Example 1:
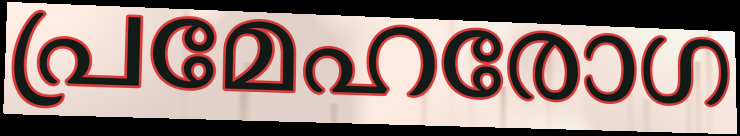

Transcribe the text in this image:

പ്രമേഹരോഗ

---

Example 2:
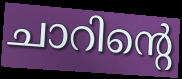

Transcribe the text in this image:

ചാറിന്റെ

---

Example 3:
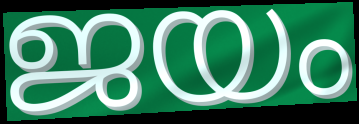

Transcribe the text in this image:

ജയം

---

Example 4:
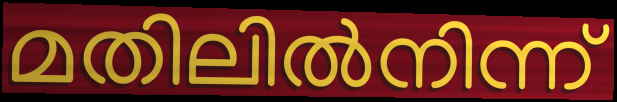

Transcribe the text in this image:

മതിലിൽനിന്ന്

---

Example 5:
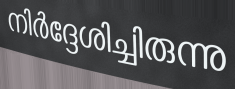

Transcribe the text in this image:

നിർദ്ദേശിച്ചിരുന്നു